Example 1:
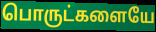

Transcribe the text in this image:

பொருட்களையே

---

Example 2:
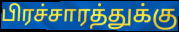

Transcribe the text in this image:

பிரச்சாரத்துக்கு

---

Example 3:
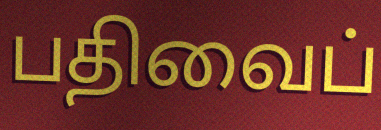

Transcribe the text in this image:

பதிவைப்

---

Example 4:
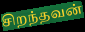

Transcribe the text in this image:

சிறந்தவன்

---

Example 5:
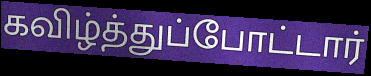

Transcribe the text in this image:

கவிழ்த்துப்போட்டார்